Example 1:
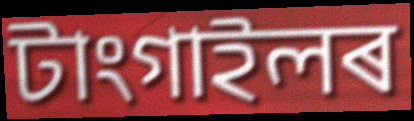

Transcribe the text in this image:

টাংগাইলৰ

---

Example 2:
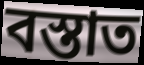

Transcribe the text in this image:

বস্তাত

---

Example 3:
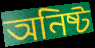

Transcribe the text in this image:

অনিষ্ট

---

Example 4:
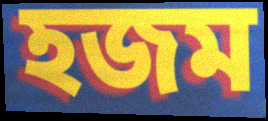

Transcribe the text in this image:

হজম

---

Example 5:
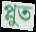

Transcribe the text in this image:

প্লুত